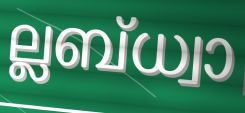
ല്ലബ്ധ്വാ